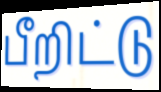
பீறிட்டு